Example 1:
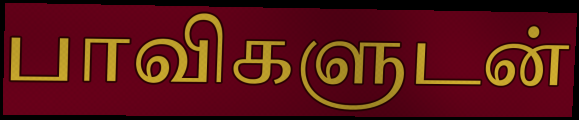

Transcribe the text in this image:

பாவிகளுடன்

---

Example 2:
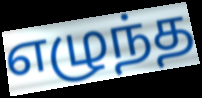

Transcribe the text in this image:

எழுந்த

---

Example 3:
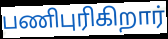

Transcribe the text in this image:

பணிபுரிகிறார்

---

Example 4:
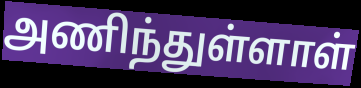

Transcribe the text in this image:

அணிந்துள்ளாள்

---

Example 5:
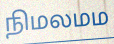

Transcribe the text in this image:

நிமலமம